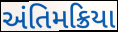
અંતિમક્રિયા